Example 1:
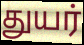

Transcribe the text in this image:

துயர்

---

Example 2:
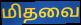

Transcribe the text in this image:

மிதவை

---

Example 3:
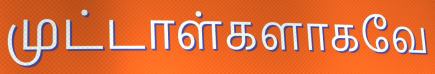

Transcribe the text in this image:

முட்டாள்களாகவே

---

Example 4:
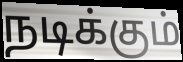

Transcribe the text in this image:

நடிக்கும்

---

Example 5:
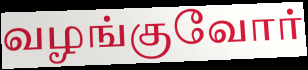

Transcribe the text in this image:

வழங்குவோர்